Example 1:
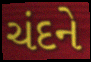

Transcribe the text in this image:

ચંદને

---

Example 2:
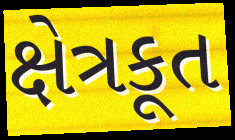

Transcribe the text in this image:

ક્ષેત્રકૂત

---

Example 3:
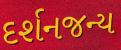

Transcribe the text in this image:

દર્શનજન્ય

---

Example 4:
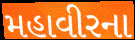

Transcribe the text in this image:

મહાવીરના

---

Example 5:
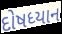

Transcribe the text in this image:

દોષધ્યાન